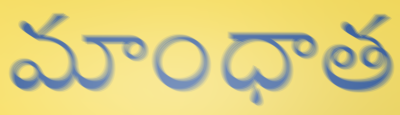
మాంధాత